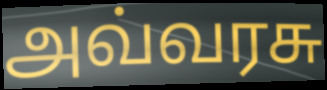
அவ்வரசு